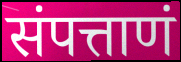
संपत्ताणं